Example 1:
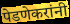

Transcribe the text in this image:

पेडणेकरांनी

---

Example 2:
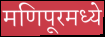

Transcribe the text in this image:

मणिपूरमध्ये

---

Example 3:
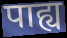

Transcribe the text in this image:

पाह्य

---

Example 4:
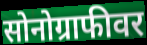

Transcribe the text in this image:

सोनोग्राफीवर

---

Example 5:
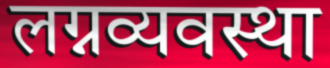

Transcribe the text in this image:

लग्नव्यवस्था